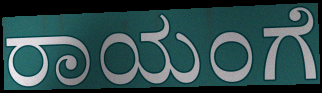
ರಾಯಂಗೆ